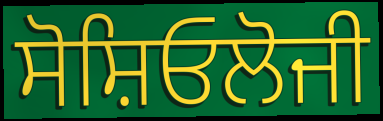
ਸੋਸ਼ਿਓਲੋਜੀ